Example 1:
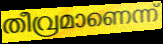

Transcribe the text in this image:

തീവ്രമാണെന്ന്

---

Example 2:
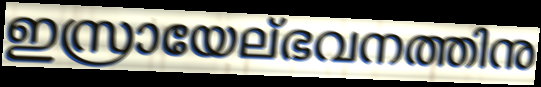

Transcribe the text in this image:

ഇസ്രായേല്ഭവനത്തിനു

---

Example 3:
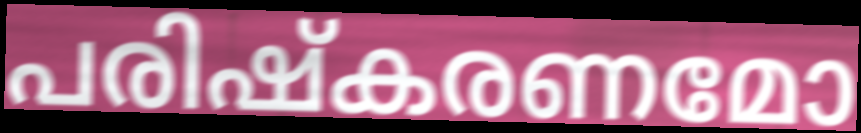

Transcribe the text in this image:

പരിഷ്കരണമോ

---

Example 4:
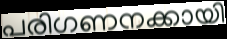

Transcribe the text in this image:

പരിഗണനക്കായി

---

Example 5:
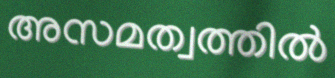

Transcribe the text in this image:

അസമത്വത്തിൽ